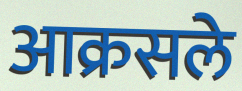
आक्रसले